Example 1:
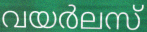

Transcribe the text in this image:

വയർലസ്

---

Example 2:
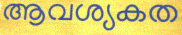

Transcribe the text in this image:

ആവശ്യകത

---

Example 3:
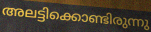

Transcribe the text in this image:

അലട്ടിക്കൊണ്ടിരുന്നു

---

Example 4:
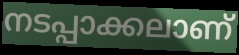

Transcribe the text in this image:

നടപ്പാക്കലാണ്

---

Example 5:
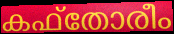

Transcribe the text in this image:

കഫ്തോരീം